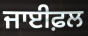
ਜਾਈਫ਼ਲ